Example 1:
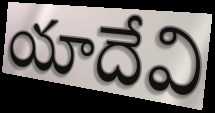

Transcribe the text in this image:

యాదేవి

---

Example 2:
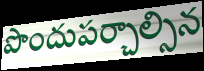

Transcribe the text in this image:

పొందుపర్చాల్సిన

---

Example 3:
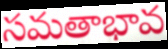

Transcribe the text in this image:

సమతాభావ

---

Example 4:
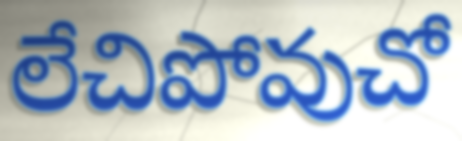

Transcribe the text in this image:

లేచిపోవుచో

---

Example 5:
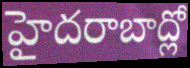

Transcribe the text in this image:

హైదరాబాద్లో